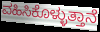
ವಹಿಸಿಕೊಳ್ಳುತ್ತಾನೆ